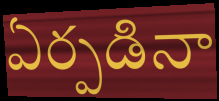
ఏర్పడినా